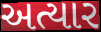
અત્યાર